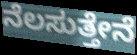
ನೆಲಸುತ್ತೇನೆ